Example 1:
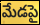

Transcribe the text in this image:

మేడపై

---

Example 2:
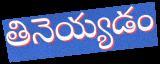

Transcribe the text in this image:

తినెయ్యడం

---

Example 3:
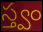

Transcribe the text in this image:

స్త్వం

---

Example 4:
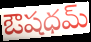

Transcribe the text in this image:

ఔషధమ్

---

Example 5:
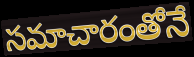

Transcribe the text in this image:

సమాచారంతోనే